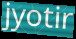
jyotir